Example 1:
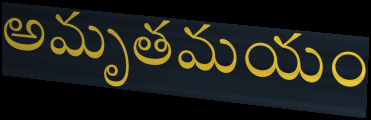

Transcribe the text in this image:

అమృతమయం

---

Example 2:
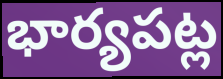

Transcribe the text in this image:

భార్యపట్ల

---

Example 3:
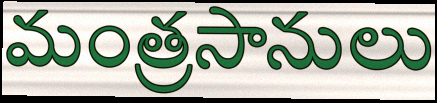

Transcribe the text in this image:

మంత్రసానులు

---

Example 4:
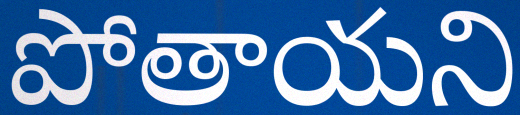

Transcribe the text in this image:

పోతాయని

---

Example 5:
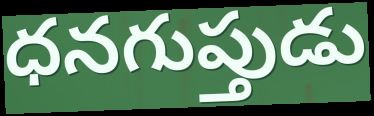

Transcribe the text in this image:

ధనగుప్తుడు